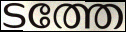
ടത്തേ